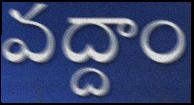
వద్దాం